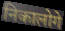
निकालोगे